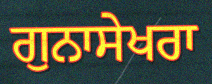
ਗੁਨਾਸੇਖਰਾ